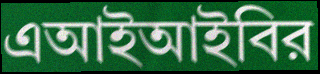
এআইআইবির